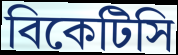
বিকেটিসি